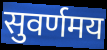
सुवर्णमय